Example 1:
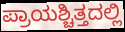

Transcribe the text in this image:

ಪ್ರಾಯಶ್ಚಿತ್ತದಲ್ಲಿ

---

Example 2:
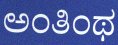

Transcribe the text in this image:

ಅಂತಿಂಥ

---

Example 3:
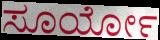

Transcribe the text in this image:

ಸೂರ್ಯೋ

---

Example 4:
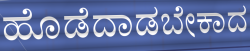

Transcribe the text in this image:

ಹೊಡೆದಾಡಬೇಕಾದ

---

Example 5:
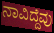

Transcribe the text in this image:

ನಾವಿದ್ದೆವು